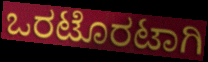
ಒರಟೊರಟಾಗಿ